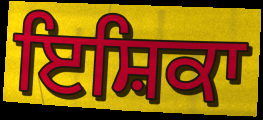
ਇਸ਼ਿਕਾ